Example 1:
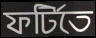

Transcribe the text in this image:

ফর্টিতে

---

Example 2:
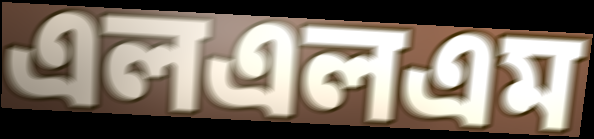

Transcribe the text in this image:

এলএলএম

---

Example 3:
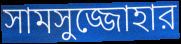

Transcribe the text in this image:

সামসুজ্জোহার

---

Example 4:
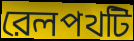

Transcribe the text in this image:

রেলপথটি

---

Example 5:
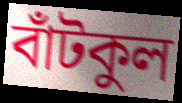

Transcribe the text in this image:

বাঁটকুল